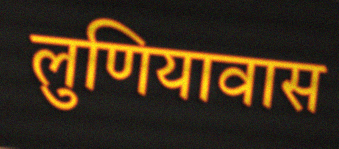
लुणियावास